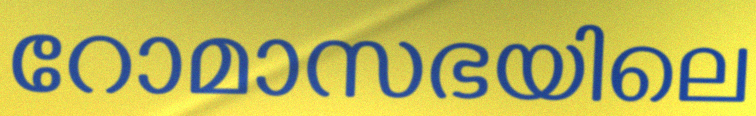
റോമാസഭയിലെ